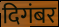
दिगंबर